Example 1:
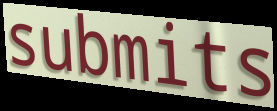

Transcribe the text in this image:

submits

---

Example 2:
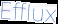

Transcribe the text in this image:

Efflux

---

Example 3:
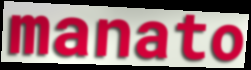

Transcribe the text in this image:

manato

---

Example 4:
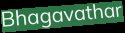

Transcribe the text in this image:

Bhagavathar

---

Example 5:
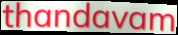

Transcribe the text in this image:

thandavam